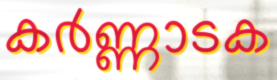
കർണ്ണാടക